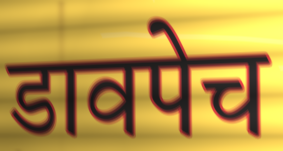
डावपेच